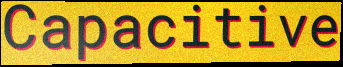
Capacitive